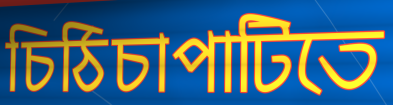
চিঠিচাপাটিতে